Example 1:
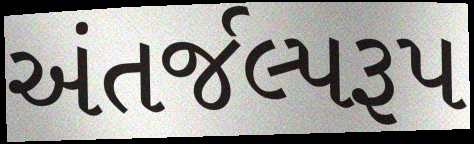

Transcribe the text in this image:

અંતર્જલ્પરૂપ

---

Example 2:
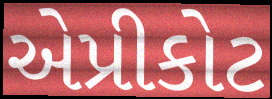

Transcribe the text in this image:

એપ્રીકોટ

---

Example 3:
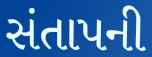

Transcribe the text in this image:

સંતાપની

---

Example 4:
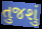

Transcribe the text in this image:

તુજશું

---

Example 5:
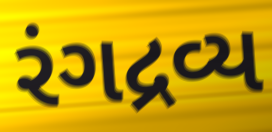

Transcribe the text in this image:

રંગદ્રવ્ય